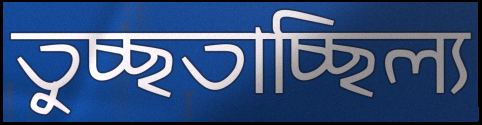
তুচ্ছতাচ্ছিল্য